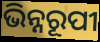
ଭିନ୍ନରୂପୀ